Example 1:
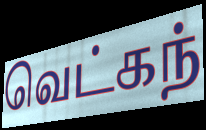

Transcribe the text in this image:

வெட்கந்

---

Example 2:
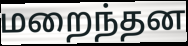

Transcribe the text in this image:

மறைந்தன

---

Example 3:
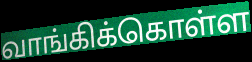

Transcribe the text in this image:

வாங்கிக்கொள்ள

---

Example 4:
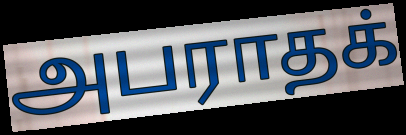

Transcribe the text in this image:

அபராதக்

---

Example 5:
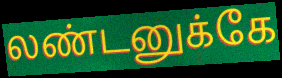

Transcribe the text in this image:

லண்டனுக்கே